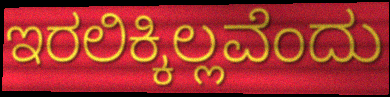
ಇರಲಿಕ್ಕಿಲ್ಲವೆಂದು